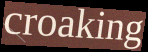
croaking